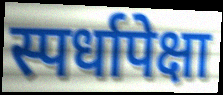
स्पर्धापेक्षा